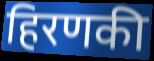
हिरणकी